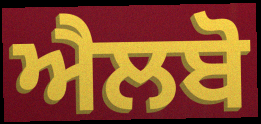
ਐਲਬੋ